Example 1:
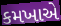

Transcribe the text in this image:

કમખાએ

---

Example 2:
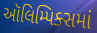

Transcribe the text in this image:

ઑલિમ્પિક્સમાં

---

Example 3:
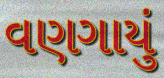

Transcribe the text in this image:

વણગાયું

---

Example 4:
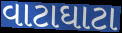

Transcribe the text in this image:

વાટાઘાટા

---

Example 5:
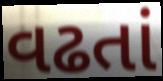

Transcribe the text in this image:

વઢતાં